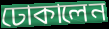
ঢোকালেন